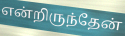
என்றிருந்தேன்